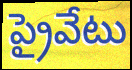
ప్రైవేటు